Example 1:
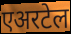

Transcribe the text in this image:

एअरटेल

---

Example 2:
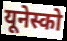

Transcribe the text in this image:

यूनेस्को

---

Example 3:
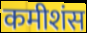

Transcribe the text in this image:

कमीशंस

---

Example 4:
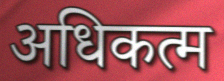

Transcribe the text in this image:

अधिकत्म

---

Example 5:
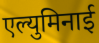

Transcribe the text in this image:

एल्युमिनाई